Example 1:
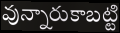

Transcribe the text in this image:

వున్నారుకాబట్టి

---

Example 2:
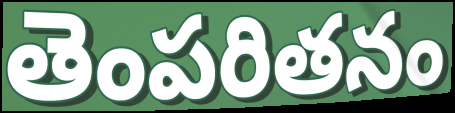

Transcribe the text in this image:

తెంపరితనం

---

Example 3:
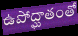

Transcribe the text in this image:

ఉపోద్ఘాతంతో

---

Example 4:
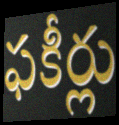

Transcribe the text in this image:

ఫకీర్లు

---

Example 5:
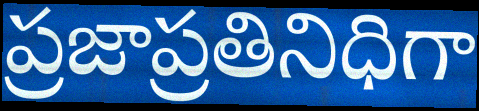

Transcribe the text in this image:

ప్రజాప్రతినిధిగా